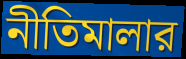
নীতিমালার